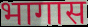
भागास